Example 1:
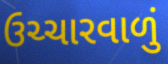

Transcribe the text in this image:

ઉચ્ચારવાળું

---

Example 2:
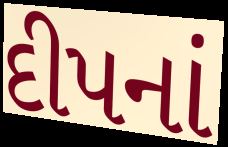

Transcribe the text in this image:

દીપનાં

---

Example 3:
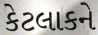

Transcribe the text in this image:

કેટલાકને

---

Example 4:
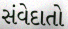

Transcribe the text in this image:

સંવેદાતો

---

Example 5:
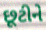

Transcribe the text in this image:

છૂટીને